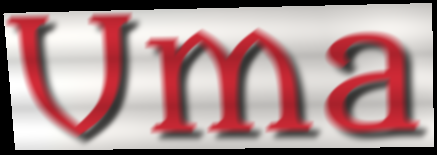
Uma